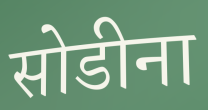
सोडीना